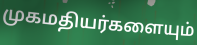
முகமதியர்களையும்